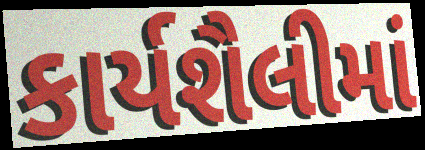
કાર્યશૈલીમાં